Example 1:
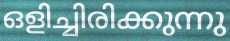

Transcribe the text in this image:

ഒളിച്ചിരിക്കുന്നു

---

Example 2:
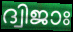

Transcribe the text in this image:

ദ്വിജാഃ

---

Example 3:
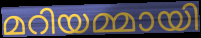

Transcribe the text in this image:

മറിയമ്മായി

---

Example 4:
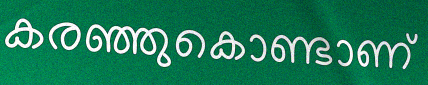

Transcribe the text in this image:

കരഞ്ഞുകൊണ്ടാണ്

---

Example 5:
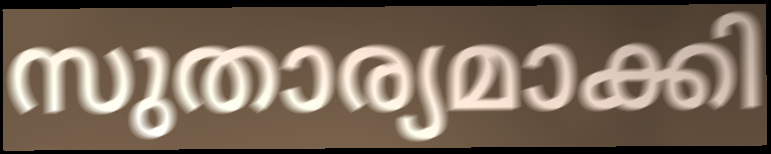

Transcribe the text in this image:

സുതാര്യമാക്കി